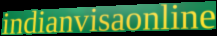
indianvisaonline